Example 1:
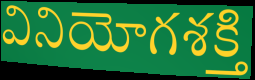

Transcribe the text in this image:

వినియోగశక్తి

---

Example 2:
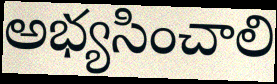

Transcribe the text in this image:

అభ్యసించాలి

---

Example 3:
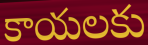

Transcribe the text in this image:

కాయలకు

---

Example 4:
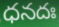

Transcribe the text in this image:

ధనదః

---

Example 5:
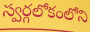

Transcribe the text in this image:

స్వర్గలోకంలోని